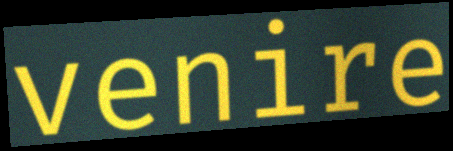
venire